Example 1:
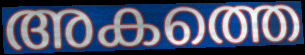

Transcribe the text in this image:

അകത്തെ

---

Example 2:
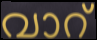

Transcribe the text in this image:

വാറ്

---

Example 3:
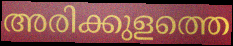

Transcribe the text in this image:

അരിക്കുളത്തെ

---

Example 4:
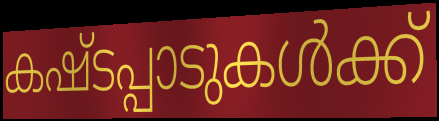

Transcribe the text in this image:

കഷ്ടപ്പാടുകൾക്ക്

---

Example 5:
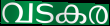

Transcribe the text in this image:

വടകര